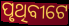
ପୃଥିବୀଟେ